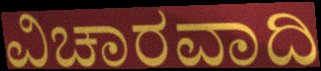
ವಿಚಾರವಾದಿ